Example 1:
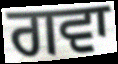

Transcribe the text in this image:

ਗਵਾ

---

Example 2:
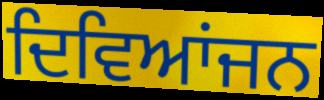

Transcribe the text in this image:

ਦਿਵਿਆਂਜਨ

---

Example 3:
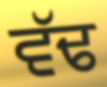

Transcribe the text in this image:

ਵੱਢ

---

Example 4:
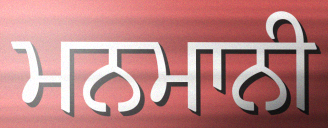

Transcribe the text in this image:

ਮਨਮਾਨੀ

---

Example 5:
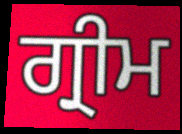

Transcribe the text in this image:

ਗ੍ਰੀਮ